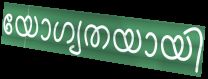
യോഗ്യതയായി